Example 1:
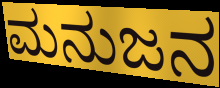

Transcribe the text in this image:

ಮನುಜನ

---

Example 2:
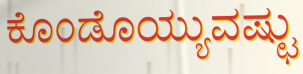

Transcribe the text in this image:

ಕೊಂಡೊಯ್ಯುವಷ್ಟು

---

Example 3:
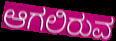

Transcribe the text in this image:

ಆಗಲಿರುವ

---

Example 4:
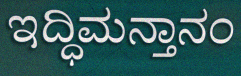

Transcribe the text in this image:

ಇದ್ಧಿಮನ್ತಾನಂ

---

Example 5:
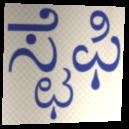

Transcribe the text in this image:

ಸ್ಟೆಫಿ